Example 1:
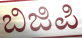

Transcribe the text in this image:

ಬಿಜಿಪಿ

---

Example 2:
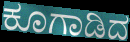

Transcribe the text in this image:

ಕೂಗಾಡಿದ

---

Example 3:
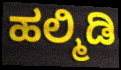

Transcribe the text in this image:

ಹಲ್ಮಿಡಿ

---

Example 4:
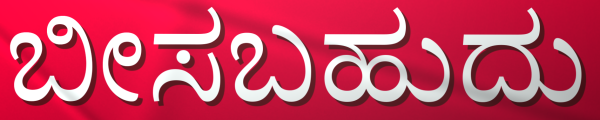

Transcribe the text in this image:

ಬೀಸಬಹುದು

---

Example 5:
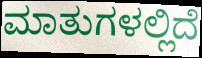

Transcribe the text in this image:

ಮಾತುಗಳಲ್ಲಿದೆ